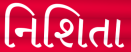
નિશિતા